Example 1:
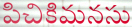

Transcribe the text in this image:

పిచికిమనసు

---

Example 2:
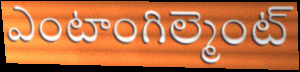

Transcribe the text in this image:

ఎంటాంగిల్మెంట్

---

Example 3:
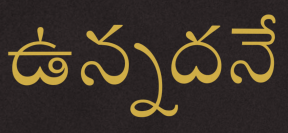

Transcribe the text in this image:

ఉన్నదనే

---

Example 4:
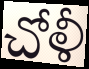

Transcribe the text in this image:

చోళీ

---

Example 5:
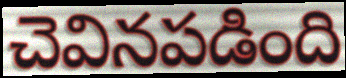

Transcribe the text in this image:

చెవినపడింది